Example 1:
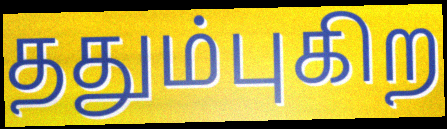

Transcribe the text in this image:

ததும்புகிற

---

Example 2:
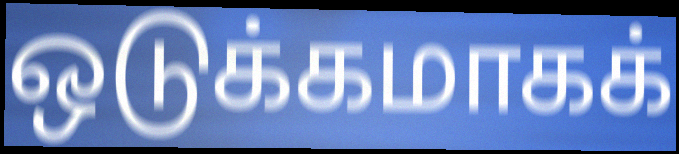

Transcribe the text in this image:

ஒடுக்கமாகக்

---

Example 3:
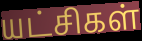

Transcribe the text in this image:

யட்சிகள்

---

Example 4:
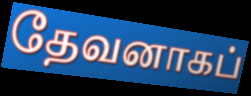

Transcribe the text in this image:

தேவனாகப்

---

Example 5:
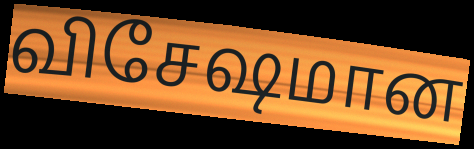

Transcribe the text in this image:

விசேஷமான